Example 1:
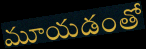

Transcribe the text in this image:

మూయడంతో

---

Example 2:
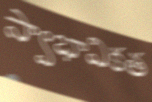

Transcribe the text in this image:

స్వాభావికత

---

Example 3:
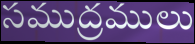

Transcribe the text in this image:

సముద్రములు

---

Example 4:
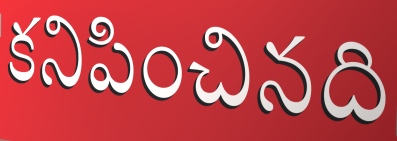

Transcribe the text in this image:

కనిపించినది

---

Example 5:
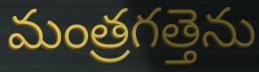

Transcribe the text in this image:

మంత్రగత్తెను